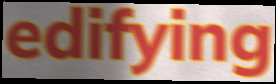
edifying